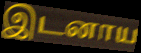
இடனாய